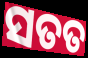
ସତତ